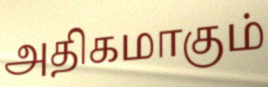
அதிகமாகும்